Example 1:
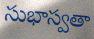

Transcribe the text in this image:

సుభాస్వతా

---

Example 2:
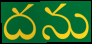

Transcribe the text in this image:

దను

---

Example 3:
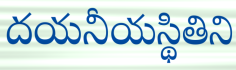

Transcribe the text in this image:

దయనీయస్థితిని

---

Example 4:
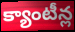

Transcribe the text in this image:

క్యాంటీన్ల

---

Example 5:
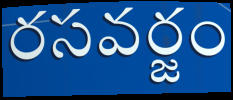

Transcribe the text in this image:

రసవర్జం